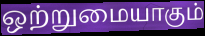
ஒற்றுமையாகும்